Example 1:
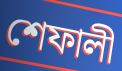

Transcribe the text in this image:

শেফালী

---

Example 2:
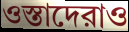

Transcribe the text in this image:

ওস্তাদেরাও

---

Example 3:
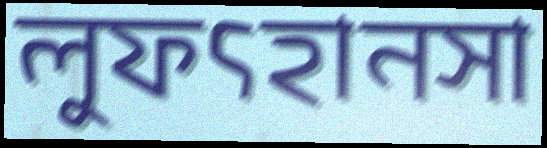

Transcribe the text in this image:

লুফৎহানসা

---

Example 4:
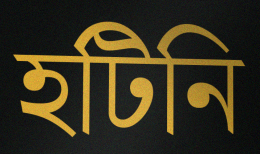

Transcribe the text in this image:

হটিনি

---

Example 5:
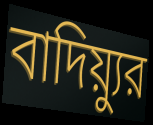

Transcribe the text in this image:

বাদিয়্যুর